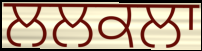
ਲਲਕਲਾ